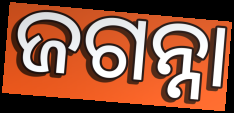
ଜଗନ୍ନା